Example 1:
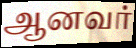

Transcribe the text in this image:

ஆனவர்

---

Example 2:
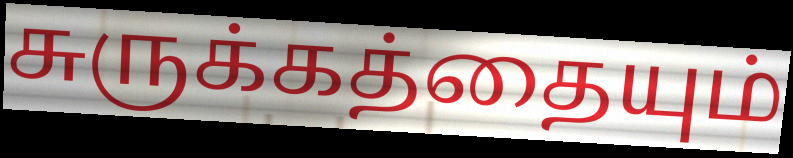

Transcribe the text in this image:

சுருக்கத்தையும்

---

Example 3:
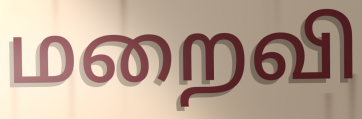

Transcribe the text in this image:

மறைவி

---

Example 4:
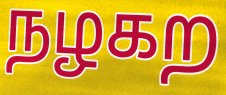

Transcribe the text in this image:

நழகற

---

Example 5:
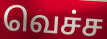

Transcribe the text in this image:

வெச்ச